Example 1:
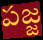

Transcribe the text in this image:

పజ్జ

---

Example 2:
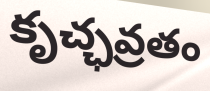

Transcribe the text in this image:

కృచ్ఛవ్రతం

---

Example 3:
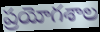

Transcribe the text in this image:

ప్రయోగశాల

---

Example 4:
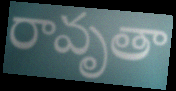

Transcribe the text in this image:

రావృతా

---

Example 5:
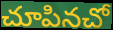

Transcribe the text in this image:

చూపినచో